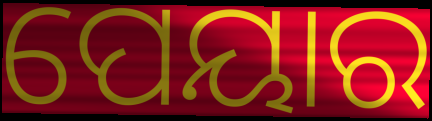
ପେୟାର